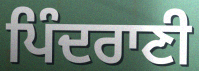
ਪਿੰਦਰਾਣੀ